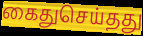
கைதுசெய்தது